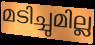
മടിച്ചുമില്ല